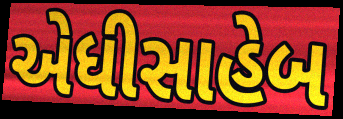
એધીસાહેબ